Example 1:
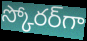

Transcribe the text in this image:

స్కోరర్‌గా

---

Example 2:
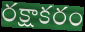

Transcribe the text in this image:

రక్షాకరం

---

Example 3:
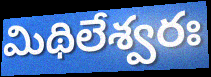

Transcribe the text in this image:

మిథిలేశ్వరః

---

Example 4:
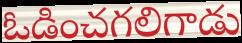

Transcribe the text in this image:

ఓడించగలిగాడు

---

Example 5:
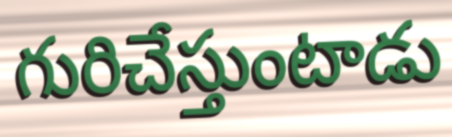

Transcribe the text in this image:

గురిచేస్తుంటాడు